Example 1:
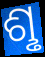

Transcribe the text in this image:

ଶୢ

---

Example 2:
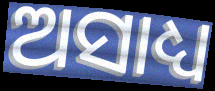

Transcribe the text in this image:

ଅସାଧ୍ୟ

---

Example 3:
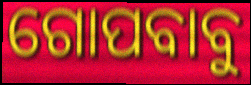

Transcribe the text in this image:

ଗୋପବାବୁ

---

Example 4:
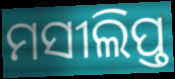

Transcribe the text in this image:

ମସୀଲିପ୍ତ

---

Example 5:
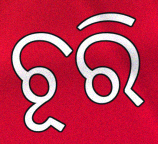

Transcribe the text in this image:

ଚୂରି